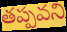
తప్పవని